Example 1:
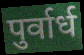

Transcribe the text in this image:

पुर्वार्ध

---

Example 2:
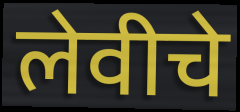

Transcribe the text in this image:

लेवीचे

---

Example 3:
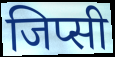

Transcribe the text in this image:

जिप्सी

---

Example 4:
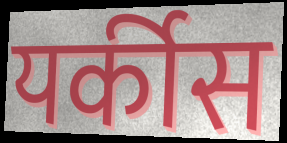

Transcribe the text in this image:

यर्कीस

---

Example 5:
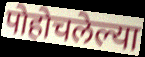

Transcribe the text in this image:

पोहोचलेल्या